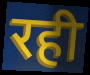
रही